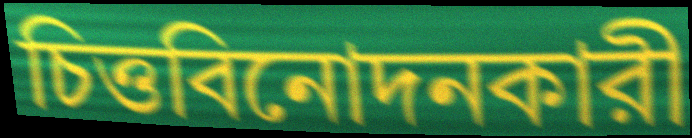
চিত্তবিনোদনকারী